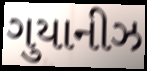
ગુયાનીઝ